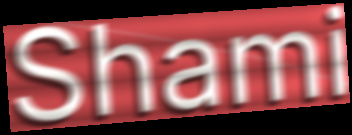
Shami